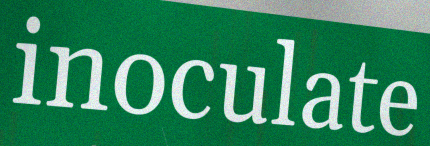
inoculate